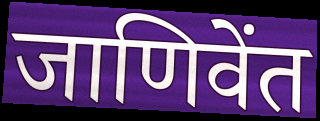
जाणिवेंत